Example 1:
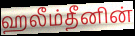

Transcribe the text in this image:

ஹலீம்தீனின்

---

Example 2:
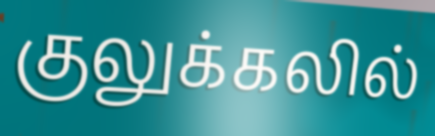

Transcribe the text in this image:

குலுக்கலில்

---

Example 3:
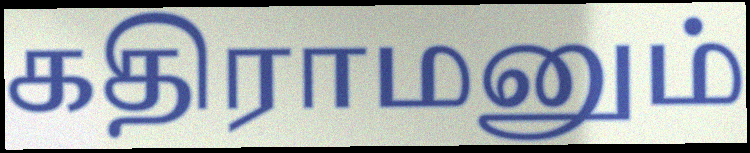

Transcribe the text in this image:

கதிராமனும்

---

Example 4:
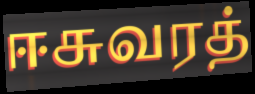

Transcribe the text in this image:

ஈசுவரத்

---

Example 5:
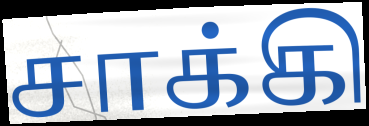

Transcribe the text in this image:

சாக்கி